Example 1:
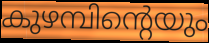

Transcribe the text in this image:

കുഴമ്പിന്റെയും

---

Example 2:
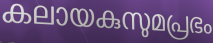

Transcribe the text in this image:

കലായകുസുമപ്രഭം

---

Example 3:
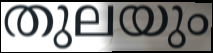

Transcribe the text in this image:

തുലയും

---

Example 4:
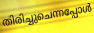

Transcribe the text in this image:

തിരിച്ചുചെന്നപ്പോൾ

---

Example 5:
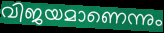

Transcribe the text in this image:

വിജയമാണെന്നും